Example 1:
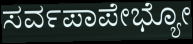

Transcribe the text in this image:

ಸರ್ವಪಾಪೇಭ್ಯೋ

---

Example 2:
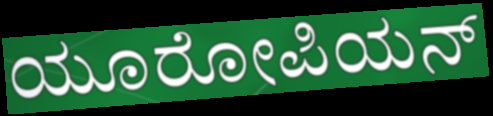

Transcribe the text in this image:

ಯೂರೋಪಿಯನ್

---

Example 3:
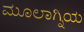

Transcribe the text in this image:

ಮೂಲಾಗ್ನಿಯ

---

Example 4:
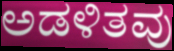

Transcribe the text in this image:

ಅಡಳಿತವು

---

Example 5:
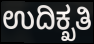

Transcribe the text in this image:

ಉದಿಕ್ಖತಿ